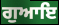
ਗੁਆਇ